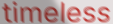
timeless